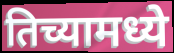
तिच्यामध्ये